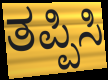
ತಪ್ಪಿಸಿ